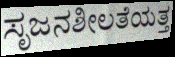
ಸೃಜನಶೀಲತೆಯತ್ತ